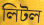
লিটল